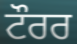
ਟੌਰਰ